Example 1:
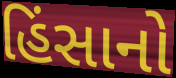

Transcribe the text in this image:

હિંસાનો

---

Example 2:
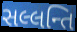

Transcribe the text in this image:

સલ્લન્તિ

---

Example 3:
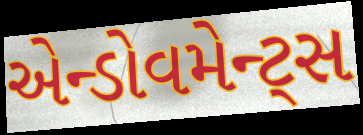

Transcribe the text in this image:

એન્ડોવમેન્ટ્સ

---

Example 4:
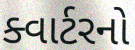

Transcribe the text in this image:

ક્વાર્ટરનો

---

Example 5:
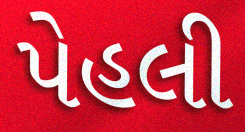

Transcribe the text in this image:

પેહલી